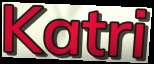
Katri